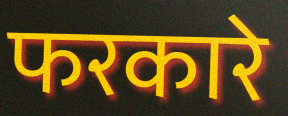
फरकारे